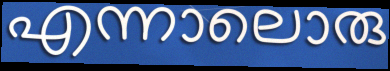
എന്നാലൊരു